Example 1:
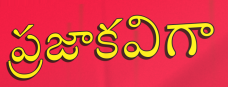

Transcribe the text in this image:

ప్రజాకవిగా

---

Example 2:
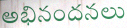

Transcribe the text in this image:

అభినందనలు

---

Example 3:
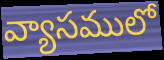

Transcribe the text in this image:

వ్యాసములో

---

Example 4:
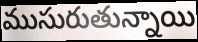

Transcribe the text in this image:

ముసురుతున్నాయి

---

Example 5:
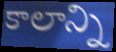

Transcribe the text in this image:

కాలాన్ని